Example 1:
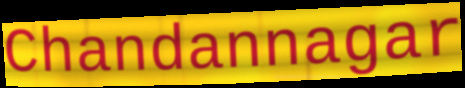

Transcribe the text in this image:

Chandannagar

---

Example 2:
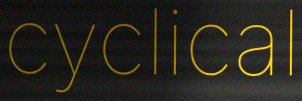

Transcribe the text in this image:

cyclical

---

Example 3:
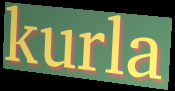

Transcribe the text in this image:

kurla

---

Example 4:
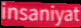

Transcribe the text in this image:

insaniyat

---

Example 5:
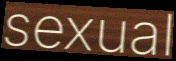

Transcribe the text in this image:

sexual